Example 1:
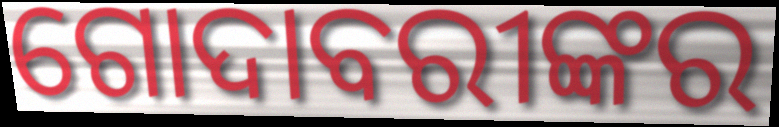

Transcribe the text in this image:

ଗୋଦାବରୀଙ୍କର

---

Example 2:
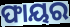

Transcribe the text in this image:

ଫାୟର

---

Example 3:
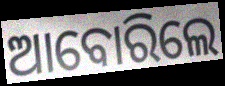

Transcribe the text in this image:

ଆବୋରିଲେ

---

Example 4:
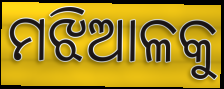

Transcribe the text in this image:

ମଝିଆଳକୁ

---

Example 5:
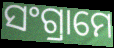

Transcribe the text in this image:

ସଂଗ୍ରାମେ